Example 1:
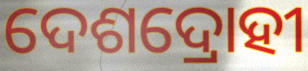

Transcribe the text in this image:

ଦେଶଦ୍ରୋହୀ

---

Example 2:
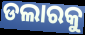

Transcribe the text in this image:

ଡଲାରକୁ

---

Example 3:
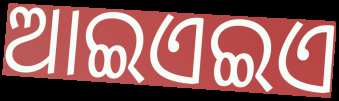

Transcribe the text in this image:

ଆଇଏଇଏ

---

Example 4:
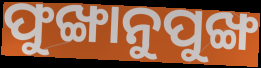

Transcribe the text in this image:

ଫୁଙ୍ଖାନୁପୁଙ୍ଖ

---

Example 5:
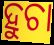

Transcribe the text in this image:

ହୁଚା